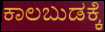
ಕಾಲಬುಡಕ್ಕೆ